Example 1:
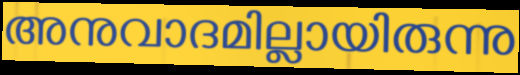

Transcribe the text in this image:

അനുവാദമില്ലായിരുന്നു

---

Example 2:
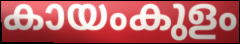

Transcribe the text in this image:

കായംകുളം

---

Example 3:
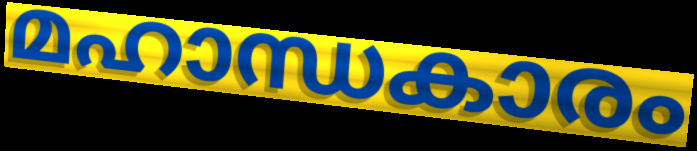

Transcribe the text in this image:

മഹാന്ധകാരം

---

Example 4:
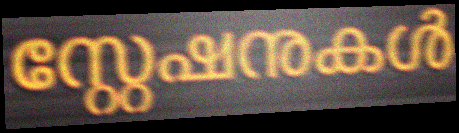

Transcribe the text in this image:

സ്റ്റേഷനുകൾ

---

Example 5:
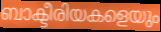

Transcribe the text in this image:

ബാക്ടീരിയകളെയും